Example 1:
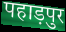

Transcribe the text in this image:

पहाड़पुर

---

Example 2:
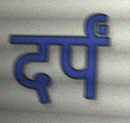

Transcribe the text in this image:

दर्पं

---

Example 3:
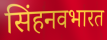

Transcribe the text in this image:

सिंहनवभारत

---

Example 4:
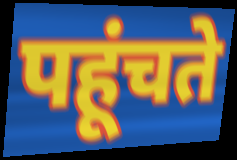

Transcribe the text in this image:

पहूंचते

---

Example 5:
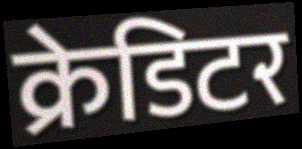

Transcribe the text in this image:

क्रेडिटर